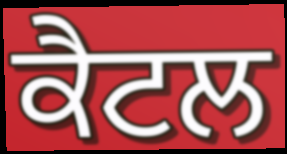
ਕੈਟਲ